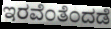
ಇರವೆಂತೆಂದಡೆ